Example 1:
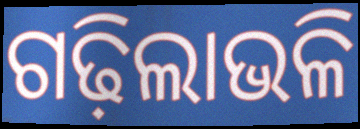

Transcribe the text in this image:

ଗଢ଼ିଲାଭଳି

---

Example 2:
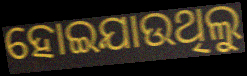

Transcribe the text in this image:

ହୋଇଯାଉଥିଲୁ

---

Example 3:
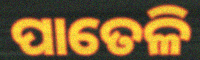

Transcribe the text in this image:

ପାତେଳି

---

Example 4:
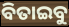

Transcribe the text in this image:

ବିତାଇବୁ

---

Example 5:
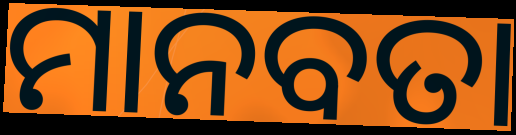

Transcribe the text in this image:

ମାନବତା